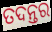
ତଦନ୍ତର